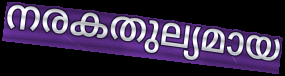
നരകതുല്യമായ